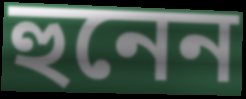
হুনেন